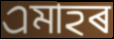
এমাহৰ